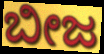
ಬೀಜ